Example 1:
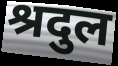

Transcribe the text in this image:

श्रदुल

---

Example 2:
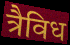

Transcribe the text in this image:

त्रैविध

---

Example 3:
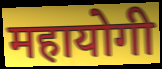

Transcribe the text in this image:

महायोगी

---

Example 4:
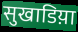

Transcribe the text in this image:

सुखाडिय़ा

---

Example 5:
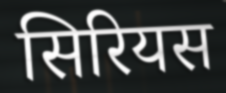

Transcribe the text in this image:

सिरियस